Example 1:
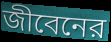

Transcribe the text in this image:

জীবেনের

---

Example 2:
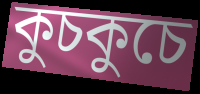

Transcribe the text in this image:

কুচকুচে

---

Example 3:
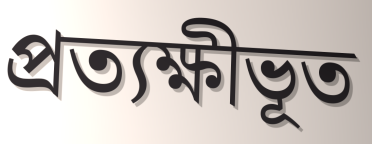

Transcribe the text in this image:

প্রত্যক্ষীভূত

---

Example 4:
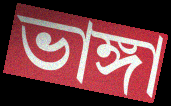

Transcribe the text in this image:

ভাঙ্গা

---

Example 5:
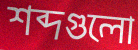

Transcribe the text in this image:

শব্দগুলো